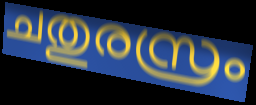
ചതുരസ്രം